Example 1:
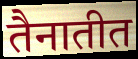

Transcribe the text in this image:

तैनातीत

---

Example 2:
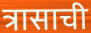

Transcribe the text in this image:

त्रासाची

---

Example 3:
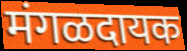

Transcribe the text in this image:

मंगळदायक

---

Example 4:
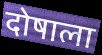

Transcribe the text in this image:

दोषाला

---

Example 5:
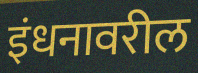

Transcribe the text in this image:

इंधनावरील